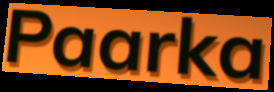
Paarka